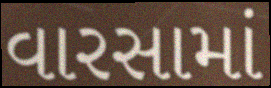
વારસામાં